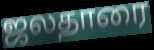
ஜலதாரை